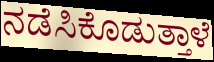
ನಡೆಸಿಕೊಡುತ್ತಾಳೆ